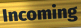
Incoming